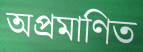
অপ্রমাণিত